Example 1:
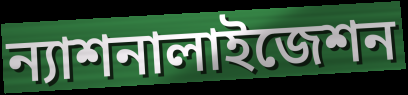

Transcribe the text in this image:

ন্যাশনালাইজেশন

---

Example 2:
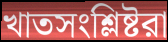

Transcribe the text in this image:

খাতসংশ্লিষ্টরা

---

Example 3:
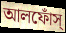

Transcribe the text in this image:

আলফোঁস্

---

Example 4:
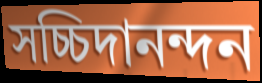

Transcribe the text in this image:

সচ্চিদানন্দন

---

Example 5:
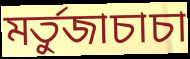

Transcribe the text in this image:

মর্তুজাচাচা